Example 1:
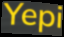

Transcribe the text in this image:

Yepi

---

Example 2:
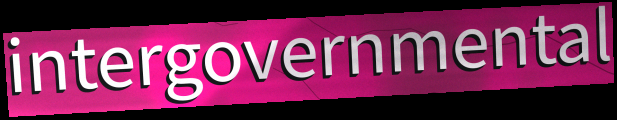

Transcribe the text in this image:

intergovernmental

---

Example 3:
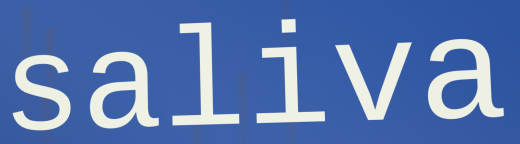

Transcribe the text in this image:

saliva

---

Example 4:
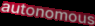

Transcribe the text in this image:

autonomous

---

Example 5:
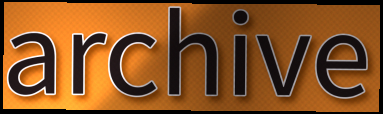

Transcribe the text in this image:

archive